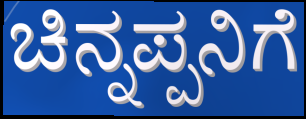
ಚಿನ್ನಪ್ಪನಿಗೆ